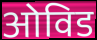
ओविड